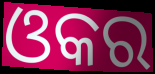
ଓକର